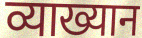
व्याख्यान